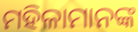
ମହିଳାମାନଙ୍କ